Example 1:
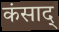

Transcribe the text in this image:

कंसाद्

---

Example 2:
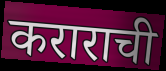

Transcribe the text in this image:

कराराची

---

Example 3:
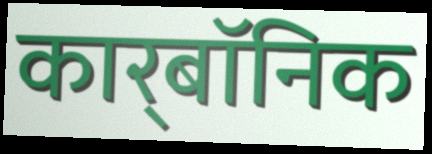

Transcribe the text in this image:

कार्‌बॉनिक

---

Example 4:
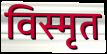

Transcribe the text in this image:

विस्मृत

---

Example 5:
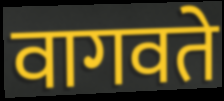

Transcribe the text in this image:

वागवते